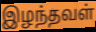
இழந்தவள்